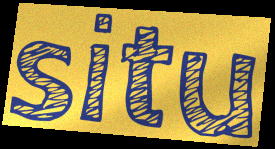
situ